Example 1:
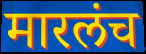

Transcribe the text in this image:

मारलंच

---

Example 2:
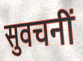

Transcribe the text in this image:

सुवचनीं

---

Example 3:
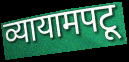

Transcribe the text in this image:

व्यायामपटू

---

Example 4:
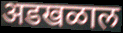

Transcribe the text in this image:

अडखळाल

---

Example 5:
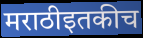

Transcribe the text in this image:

मराठीइतकीच